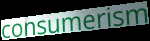
consumerism